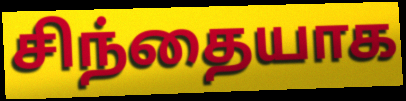
சிந்தையாக